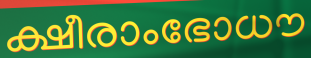
ക്ഷീരാംഭോധൗ